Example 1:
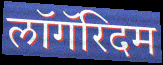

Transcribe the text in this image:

लॉगॅरिदम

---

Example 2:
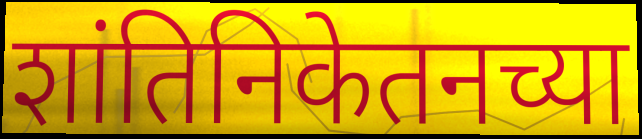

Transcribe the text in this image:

शांतिनिकेतनच्या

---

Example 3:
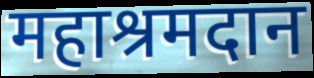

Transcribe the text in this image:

महाश्रमदान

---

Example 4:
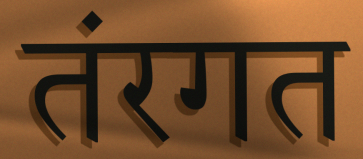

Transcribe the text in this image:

तंरगत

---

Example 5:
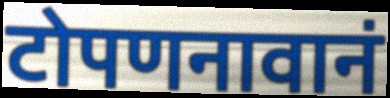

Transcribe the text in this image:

टोपणनावानं